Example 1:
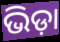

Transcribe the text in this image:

ଭିଡ଼ା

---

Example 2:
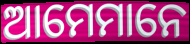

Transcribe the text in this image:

ଆମେମାନେ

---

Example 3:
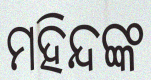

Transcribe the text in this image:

ମହିନ୍ଦଙ୍କ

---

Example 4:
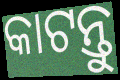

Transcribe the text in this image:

କାଟନ୍ତୁ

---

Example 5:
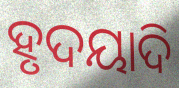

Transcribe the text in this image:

ହୃଦୟାଦି